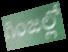
గింజల్లో